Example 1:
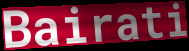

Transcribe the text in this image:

Bairati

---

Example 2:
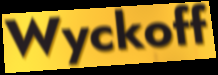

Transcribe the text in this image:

Wyckoff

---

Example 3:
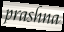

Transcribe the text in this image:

prashna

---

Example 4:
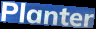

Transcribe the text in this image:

Planter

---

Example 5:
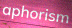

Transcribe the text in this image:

aphorism